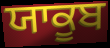
ਯਾਕੂਬ